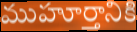
ముహూర్తానికి